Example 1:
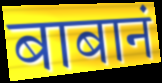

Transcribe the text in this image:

बाबानं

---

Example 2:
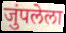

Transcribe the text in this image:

जुंपलेला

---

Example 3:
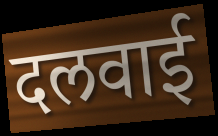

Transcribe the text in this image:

दलवाई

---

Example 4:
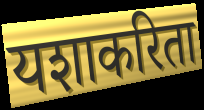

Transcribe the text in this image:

यशाकरिता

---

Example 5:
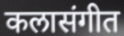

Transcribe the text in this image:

कलासंगीत